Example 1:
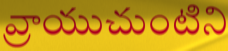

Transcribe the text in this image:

వ్రాయుచుంటిని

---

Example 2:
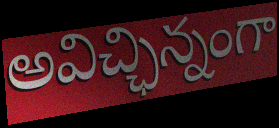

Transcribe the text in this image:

అవిచ్ఛిన్నంగా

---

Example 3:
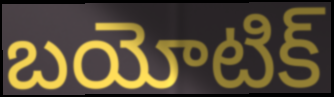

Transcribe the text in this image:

బయోటిక్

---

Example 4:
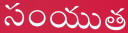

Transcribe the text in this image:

సంయుత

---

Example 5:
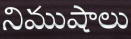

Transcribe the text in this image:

నిముషాలు